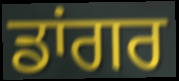
ਡਾਂਗਰ